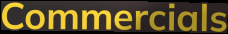
Commercials